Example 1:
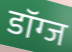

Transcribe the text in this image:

डॉग्ज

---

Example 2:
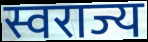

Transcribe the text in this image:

स्वराज्य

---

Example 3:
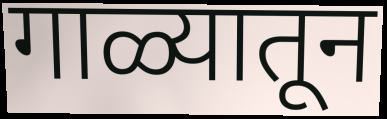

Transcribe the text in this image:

गाळ्यातून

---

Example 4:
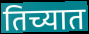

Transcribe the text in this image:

तिच्यात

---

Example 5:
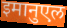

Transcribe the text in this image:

इमानुएल